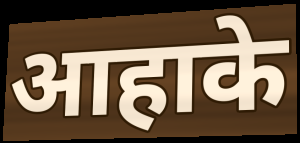
आहाके